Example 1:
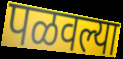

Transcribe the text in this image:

पळवल्या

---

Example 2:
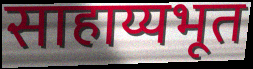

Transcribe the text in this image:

साहाय्यभूत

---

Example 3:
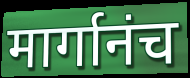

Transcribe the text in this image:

मार्गानंच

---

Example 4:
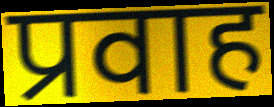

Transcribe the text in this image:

प्रवाह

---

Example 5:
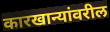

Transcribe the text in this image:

कारखान्यांवरील